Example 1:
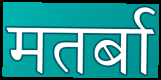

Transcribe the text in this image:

मतर्बा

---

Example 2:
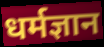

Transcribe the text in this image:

धर्मज्ञान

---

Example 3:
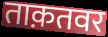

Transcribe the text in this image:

ताक़तवर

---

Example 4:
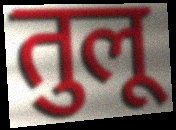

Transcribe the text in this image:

तुलू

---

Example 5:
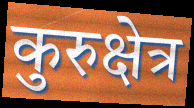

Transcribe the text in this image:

कुरुक्षेत्र